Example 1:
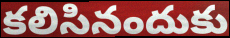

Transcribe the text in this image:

కలిసినందుకు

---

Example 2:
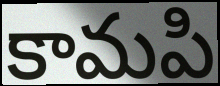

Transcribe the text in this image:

కామపి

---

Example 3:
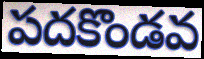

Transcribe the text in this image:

పదకొండవ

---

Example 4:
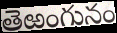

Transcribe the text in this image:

తెఱంగునం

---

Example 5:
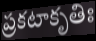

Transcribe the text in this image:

ప్రకటాకృతిః